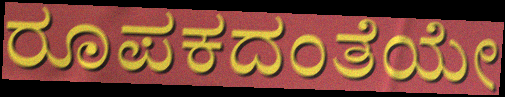
ರೂಪಕದಂತೆಯೇ